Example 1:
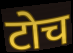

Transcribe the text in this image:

टोच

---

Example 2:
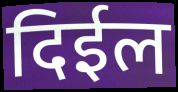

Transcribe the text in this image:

दिईल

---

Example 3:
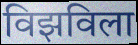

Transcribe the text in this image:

विझविला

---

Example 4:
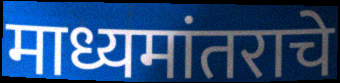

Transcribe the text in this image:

माध्यमांतराचे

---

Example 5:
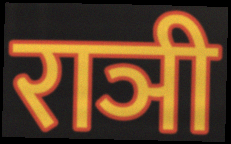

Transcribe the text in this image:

राञी